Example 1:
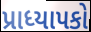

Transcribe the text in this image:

પ્રાધ્યાપકો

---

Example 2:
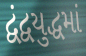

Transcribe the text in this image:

દ્વંદ્વયુદ્ધમાં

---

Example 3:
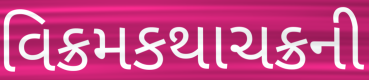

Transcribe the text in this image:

વિક્રમકથાચક્રની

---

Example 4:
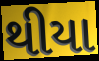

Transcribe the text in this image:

થીયા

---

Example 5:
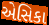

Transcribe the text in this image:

એસિકા